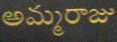
అమ్మరాజు